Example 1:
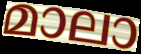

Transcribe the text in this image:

മാലാ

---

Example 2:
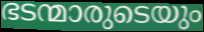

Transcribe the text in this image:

ഭടന്മാരുടെയും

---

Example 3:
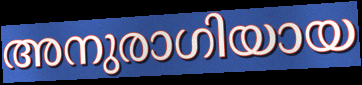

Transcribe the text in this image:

അനുരാഗിയായ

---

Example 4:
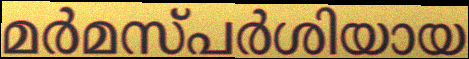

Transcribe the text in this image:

മർമസ്പർശിയായ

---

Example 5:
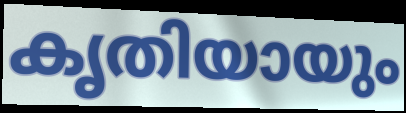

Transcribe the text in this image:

കൃതിയായും